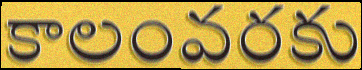
కాలంవరకు